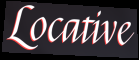
Locative